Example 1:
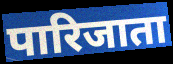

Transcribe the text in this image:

पारिजाता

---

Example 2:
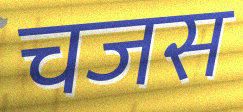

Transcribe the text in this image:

चजस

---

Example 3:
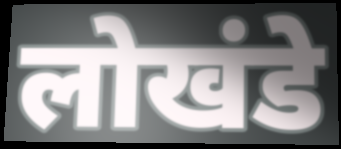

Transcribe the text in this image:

लोखंडे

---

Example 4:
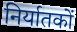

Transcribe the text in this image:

निर्यातकों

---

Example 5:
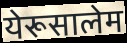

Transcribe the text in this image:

येरूसालेम